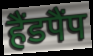
हैंडपैंप